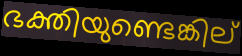
ഭക്തിയുണ്ടെങ്കില്